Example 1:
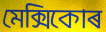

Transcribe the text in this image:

মেক্সিকোৰ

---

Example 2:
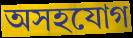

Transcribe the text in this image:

অসহযোগ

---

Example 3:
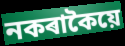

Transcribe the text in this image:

নকৰাকৈয়ে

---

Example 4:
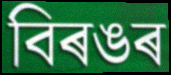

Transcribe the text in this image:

বিৰঙৰ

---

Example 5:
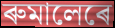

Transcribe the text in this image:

ৰুমালেৰে